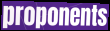
proponents